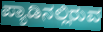
ಪ್ಯಾಡಿನಲ್ಲಿರುವ